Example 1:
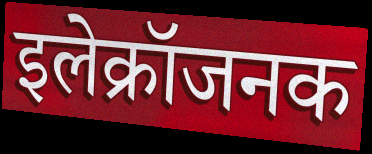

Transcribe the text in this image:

इलेक्रॉजनक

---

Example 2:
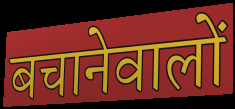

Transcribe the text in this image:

बचानेवालों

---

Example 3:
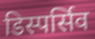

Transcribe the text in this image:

डिस्पर्सिव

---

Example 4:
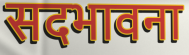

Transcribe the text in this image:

सदभावना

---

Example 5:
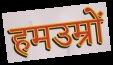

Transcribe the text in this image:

हमउम्रों